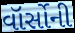
વૉર્સોની